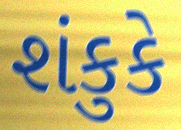
શંકુકે